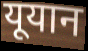
यूयान